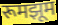
रूमझूम